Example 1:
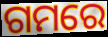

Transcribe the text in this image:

ଗମରେ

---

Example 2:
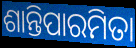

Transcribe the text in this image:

ଶାନ୍ତିପାରମିତା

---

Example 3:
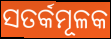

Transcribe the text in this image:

ସତର୍କମୂଳକ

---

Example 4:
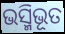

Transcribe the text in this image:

ଭସ୍ମିଭୂତ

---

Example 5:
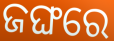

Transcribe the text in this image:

ଜଙ୍ଘରେ